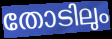
തോടിലും